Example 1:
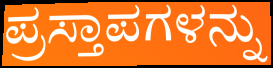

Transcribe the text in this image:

ಪ್ರಸ್ತಾಪಗಳನ್ನು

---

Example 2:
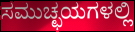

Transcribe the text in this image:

ಸಮುಚ್ಛಯಗಳಲ್ಲಿ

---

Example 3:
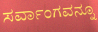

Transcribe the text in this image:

ಸರ್ವಾಂಗವನ್ನೂ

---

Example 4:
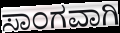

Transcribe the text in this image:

ಸಾಂಗವಾಗಿ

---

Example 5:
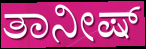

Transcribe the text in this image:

ತಾನೀಷ್